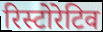
रिस्टोरेटिव